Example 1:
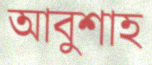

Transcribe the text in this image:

আবুশাহ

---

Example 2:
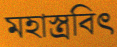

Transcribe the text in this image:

মহাস্ত্রবিৎ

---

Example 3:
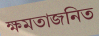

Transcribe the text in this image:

ক্ষমতাজনিত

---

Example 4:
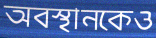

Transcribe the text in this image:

অবস্থানকেও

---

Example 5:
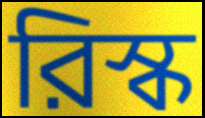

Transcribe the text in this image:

রিস্ক